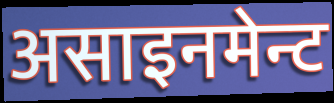
असाइनमेन्ट